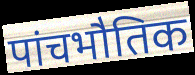
पांचभौतिक